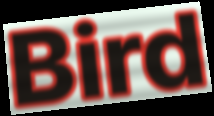
Bird